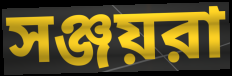
সঞ্জয়রা